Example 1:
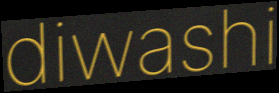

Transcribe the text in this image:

diwashi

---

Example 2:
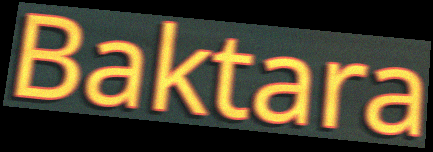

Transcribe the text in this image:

Baktara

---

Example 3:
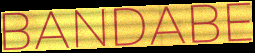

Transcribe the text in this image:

BANDABE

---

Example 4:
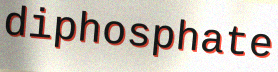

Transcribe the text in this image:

diphosphate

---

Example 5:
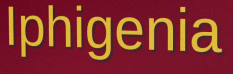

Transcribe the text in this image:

Iphigenia